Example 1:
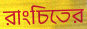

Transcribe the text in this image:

রাংচিতের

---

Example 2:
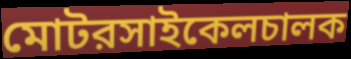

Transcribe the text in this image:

মোটরসাইকেলচালক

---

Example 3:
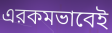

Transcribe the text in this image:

এরকমভাবেই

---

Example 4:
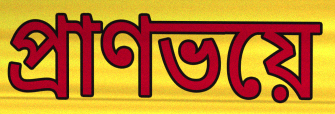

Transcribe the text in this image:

প্রাণভয়ে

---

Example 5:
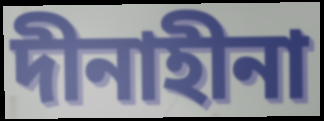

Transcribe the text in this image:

দীনাহীনা